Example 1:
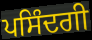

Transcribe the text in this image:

ਪਸਿੰਦਗੀ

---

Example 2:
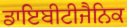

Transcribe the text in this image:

ਡਾਇਬੀਟੀਜੈਨਿਕ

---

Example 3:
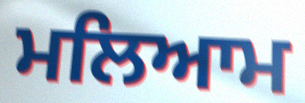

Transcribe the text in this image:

ਮਲਿਆਮ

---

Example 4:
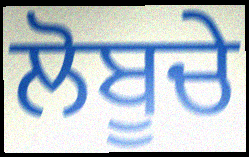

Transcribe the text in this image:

ਲੋਬੂਚੇ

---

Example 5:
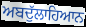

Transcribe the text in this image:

ਅਬਦੁੱਲਾਹਿਆਨ